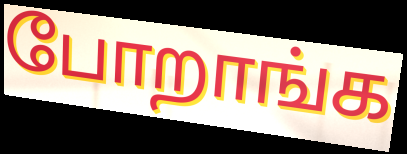
போறாங்க